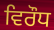
ਵਿਰੌਧ